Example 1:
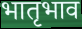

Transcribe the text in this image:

भातृभाव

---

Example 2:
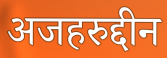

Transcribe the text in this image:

अजहरुद्दीन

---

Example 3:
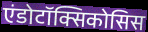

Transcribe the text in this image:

एंडोटॉक्सिकोसिस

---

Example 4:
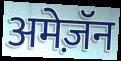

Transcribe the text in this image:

अमेज़ॅन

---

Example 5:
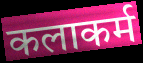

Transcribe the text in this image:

कलाकर्म